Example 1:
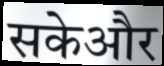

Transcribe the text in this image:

सकेऔर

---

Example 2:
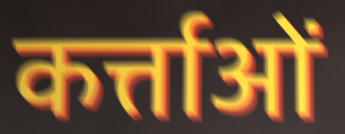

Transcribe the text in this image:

कर्त्ताओं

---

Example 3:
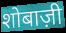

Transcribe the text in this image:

शोबाज़ी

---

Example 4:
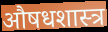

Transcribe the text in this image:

औषधशास्त्र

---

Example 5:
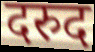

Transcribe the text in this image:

दरुद